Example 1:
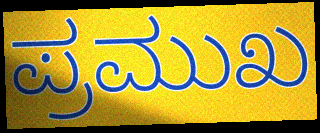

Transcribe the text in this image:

ಪ್ರಮುಖ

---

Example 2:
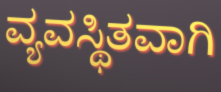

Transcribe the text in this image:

ವ್ಯವಸ್ಥಿತವಾಗಿ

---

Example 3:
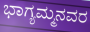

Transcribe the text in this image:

ಭಾಗ್ಯಮ್ಮನವರ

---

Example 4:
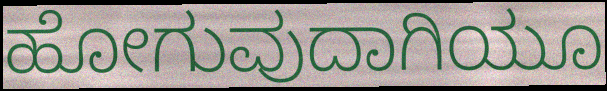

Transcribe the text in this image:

ಹೋಗುವುದಾಗಿಯೂ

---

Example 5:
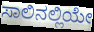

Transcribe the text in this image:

ಸಾಲಿನಲ್ಲಿಯೇ